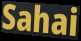
Sahai